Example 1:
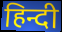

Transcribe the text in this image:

हिन्दी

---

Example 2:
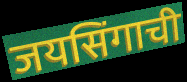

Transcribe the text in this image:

जयसिंगाची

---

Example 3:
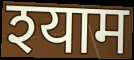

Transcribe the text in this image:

श्‍याम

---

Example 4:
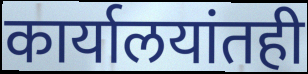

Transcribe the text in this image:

कार्यालयांतही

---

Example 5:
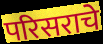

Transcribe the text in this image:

परिसराचे